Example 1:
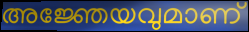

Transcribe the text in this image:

അജ്ഞേയവുമാണ്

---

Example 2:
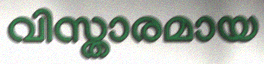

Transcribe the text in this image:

വിസ്താരമായ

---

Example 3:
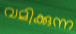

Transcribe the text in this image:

വമിക്കുന്ന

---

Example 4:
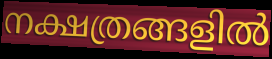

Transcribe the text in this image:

നക്ഷത്രങ്ങളിൽ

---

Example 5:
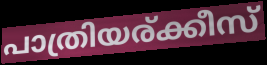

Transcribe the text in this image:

പാത്രിയര്ക്കീസ്